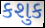
કશુક